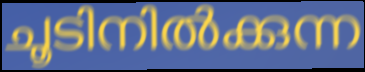
ചൂടിനിൽക്കുന്ന